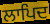
ਲਾਪਿਦ